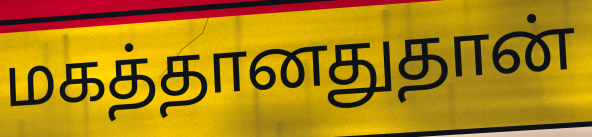
மகத்தானதுதான்